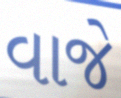
વાજે